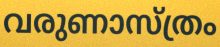
വരുണാസ്ത്രം